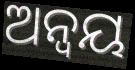
ଅନ୍ଵୟ